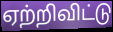
ஏற்றிவிட்டு